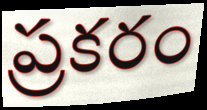
ప్రకరం